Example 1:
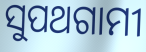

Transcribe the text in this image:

ସୁପଥଗାମୀ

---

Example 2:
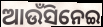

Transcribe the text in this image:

ଆଉଁସିନେଇ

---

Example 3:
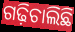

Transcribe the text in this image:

ଗଢ଼ିଚାଲିଛି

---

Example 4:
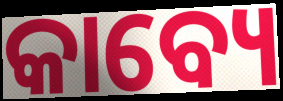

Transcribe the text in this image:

କାବ୍ୟେ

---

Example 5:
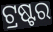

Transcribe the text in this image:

ଟ୍ରଷ୍ଟର